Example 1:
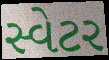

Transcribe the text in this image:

સ્વેટર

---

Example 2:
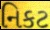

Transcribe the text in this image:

નિકટ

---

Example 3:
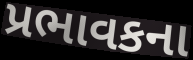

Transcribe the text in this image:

પ્રભાવકના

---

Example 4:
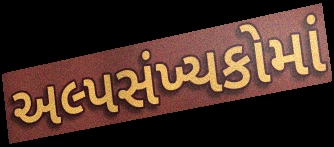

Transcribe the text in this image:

અલ્પસંખ્યકોમાં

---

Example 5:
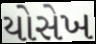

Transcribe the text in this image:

યોસેખ